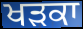
ਖੜਕਾ